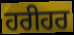
ਹਰੀਹਰ